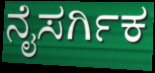
ನೈಸರ್ಗಿಕ